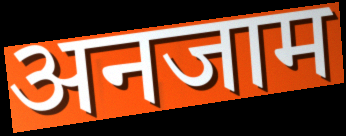
अनजाम